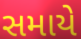
સમાયે